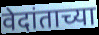
वेदांताच्या